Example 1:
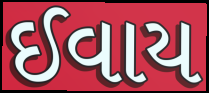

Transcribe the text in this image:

ઈવાય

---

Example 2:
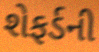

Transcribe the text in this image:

શેફર્ડની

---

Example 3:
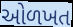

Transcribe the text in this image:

ઓળખત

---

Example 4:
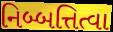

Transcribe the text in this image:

નિબ્બત્તિત્વા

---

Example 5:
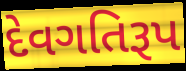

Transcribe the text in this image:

દેવગતિરૂપ